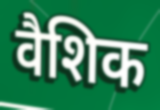
वैशिक